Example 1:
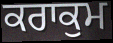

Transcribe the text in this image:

ਕਰਾਕੁਮ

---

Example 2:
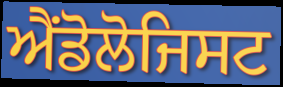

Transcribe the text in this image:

ਐਂਡੋਲੋਜਿਸਟ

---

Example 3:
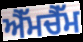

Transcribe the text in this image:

ਐੱਮਚੈੱਮ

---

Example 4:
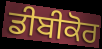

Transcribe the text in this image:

ਡੀਬੀਕੋਰ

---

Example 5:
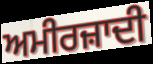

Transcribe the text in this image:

ਅਮੀਰਜ਼ਾਦੀ